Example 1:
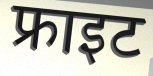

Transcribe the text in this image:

फ्राइट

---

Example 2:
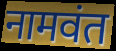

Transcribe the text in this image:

नामवंत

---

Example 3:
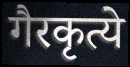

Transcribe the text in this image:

गैरकृत्ये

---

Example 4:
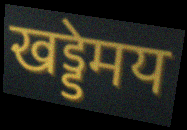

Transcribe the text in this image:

खड्डेमय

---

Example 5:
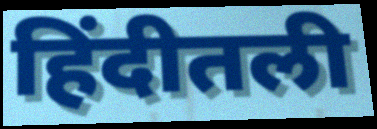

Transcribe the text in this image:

हिंदीतली